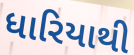
ધારિયાથી